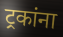
ट्रकांना